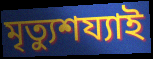
মৃত্যুশয্যাই